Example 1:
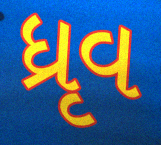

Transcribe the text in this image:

ધ્રૃવ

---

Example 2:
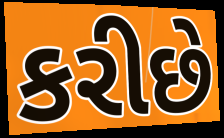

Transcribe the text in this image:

કરીછે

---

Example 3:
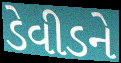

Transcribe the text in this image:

ડેવીડને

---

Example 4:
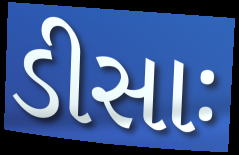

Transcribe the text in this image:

ડીસાઃ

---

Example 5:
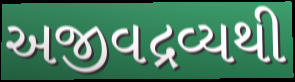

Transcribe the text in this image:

અજીવદ્રવ્યથી